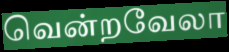
வென்றவேலா